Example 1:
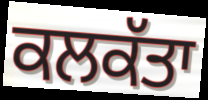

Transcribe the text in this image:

ਕਲਕੱਤਾ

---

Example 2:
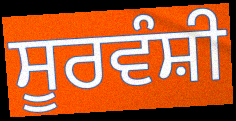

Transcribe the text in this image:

ਸੂਰਵੰਸ਼ੀ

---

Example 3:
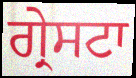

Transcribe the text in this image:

ਗ੍ਰੇਸਟਾ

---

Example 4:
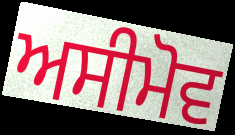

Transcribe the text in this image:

ਅਸੀਮੋਵ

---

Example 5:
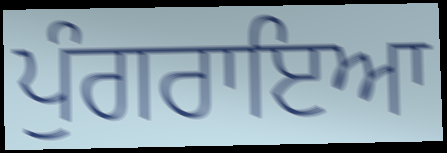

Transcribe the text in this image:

ਪੁੰਗਰਾਇਆ